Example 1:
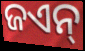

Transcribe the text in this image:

ଜଏନ୍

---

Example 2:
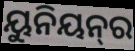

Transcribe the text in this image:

ୟୁନିୟନ୍‌ର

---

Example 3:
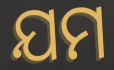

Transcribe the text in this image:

ଯମ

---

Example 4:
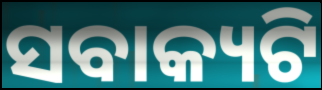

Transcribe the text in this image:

ସବାକ୍ୟଟି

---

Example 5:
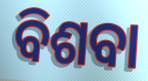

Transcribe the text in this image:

ବିଶବା